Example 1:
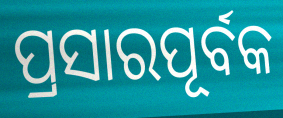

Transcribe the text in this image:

ପ୍ରସାରପୂର୍ବକ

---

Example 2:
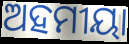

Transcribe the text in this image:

ଅହମୀୟା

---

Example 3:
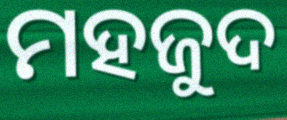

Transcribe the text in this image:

ମହଜୁଦ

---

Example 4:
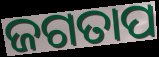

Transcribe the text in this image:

ଜଗତାପ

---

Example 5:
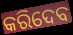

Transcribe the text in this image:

କରିଦେବ